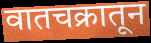
वातचक्रातून